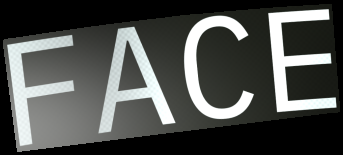
FACE